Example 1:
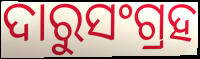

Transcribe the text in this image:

ଦାରୁସଂଗ୍ରହ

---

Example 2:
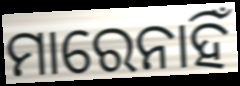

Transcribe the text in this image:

ମାରେନାହିଁ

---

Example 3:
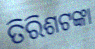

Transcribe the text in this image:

ତିରିଶଟଙ୍କା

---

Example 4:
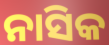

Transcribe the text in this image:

ନାସିକ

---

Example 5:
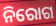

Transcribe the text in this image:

ନିରୋଗ